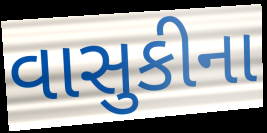
વાસુકીના